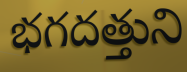
భగదత్తుని